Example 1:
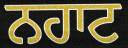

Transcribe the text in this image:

ਨਹਾਟ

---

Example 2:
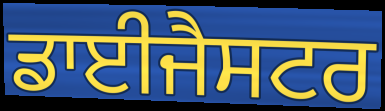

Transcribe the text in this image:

ਡਾਈਜੈਸਟਰ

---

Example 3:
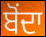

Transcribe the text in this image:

ਬੋੰਦਾ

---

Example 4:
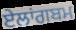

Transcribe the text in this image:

ਏਲਾਂਗਬਮ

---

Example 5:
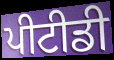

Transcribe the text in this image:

ਪੀਟੀਡੀ